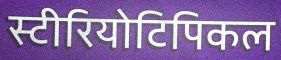
स्टीरियोटिपिकल